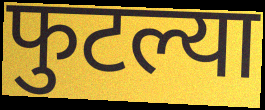
फुटल्या